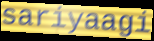
sariyaagi